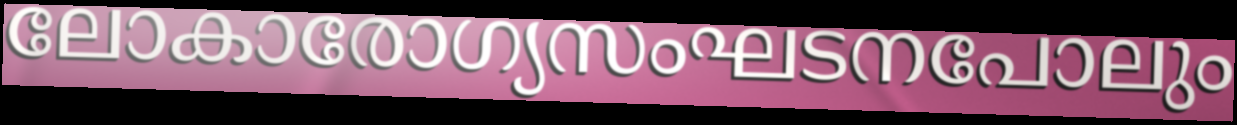
ലോകാരോഗ്യസംഘടനപോലും